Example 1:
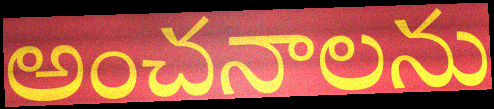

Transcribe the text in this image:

అంచనాలను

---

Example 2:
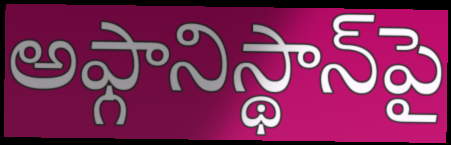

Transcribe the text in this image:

అఫ్గానిస్థాన్‌పై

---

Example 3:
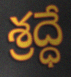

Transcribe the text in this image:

శ్రద్ధే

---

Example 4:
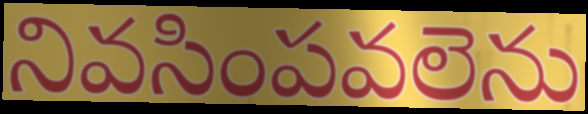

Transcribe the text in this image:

నివసింపవలెను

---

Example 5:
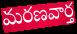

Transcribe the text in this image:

మరణవార్త